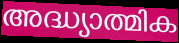
അദ്ധ്യാത്മിക